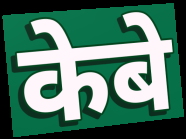
केबे